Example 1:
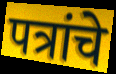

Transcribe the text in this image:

पत्रांचे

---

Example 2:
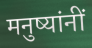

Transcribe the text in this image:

मनुष्यांनीं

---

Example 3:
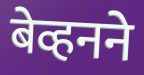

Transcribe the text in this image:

बेव्हनने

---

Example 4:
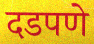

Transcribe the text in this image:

दडपणे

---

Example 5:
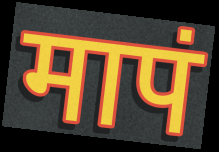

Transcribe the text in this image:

मापं